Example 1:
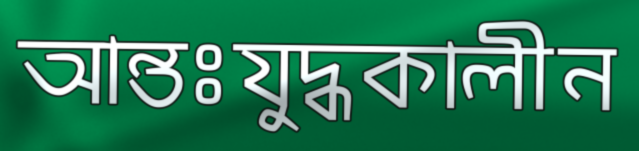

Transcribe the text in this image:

আন্তঃযুদ্ধকালীন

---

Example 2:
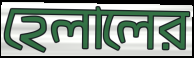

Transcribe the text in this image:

হেলালের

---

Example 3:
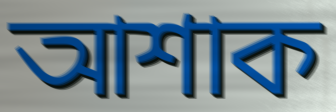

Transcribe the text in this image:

আশাক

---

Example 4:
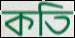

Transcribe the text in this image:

কতি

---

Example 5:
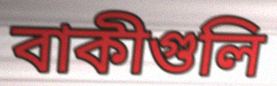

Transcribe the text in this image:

বাকীগুলি